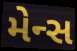
મેન્સ